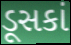
ડૂસકાં